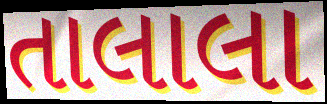
તાલાલા